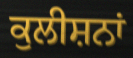
ਕੁਲੀਸ਼ਨਾਂ